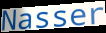
Nasser